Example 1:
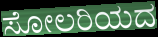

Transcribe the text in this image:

ಸೋಲರಿಯದ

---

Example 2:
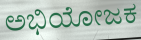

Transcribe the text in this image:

ಅಭಿಯೋಜಕ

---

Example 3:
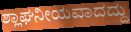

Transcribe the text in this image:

ಶ್ಲಾಘನೀಯವಾದದ್ದು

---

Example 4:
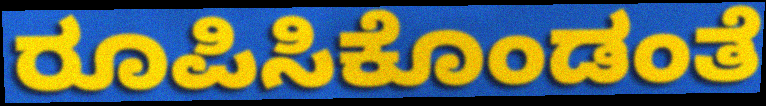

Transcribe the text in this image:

ರೂಪಿಸಿಕೊಂಡಂತೆ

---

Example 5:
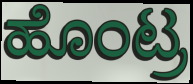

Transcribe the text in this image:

ಹೊಂಟ್ರ